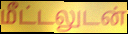
மீட்டலுடன்